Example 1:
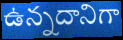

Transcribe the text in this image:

ఉన్నదానిగా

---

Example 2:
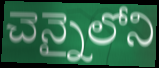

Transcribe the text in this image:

చెన్నైలోని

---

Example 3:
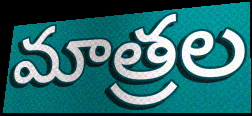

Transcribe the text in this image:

మాత్రల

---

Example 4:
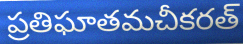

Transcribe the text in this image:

ప్రతిఘాతమచీకరత్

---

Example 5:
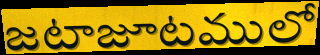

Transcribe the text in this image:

జటాజూటములో